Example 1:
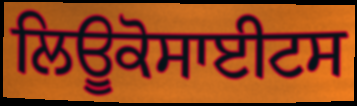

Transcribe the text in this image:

ਲਿਊਕੋਸਾਈਟਸ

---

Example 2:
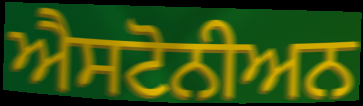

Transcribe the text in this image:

ਐਸਟੋਨੀਅਨ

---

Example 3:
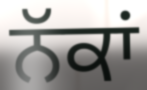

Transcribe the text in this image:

ਨੱਕਾਂ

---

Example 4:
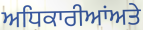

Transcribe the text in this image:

ਅਧਿਕਾਰੀਆਂਅਤੇ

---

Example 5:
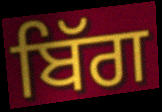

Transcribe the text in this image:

ਬਿੱਗ